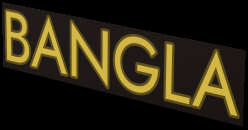
BANGLA